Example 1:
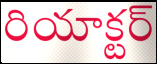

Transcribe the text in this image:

రియాక్టర్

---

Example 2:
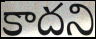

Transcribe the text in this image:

కాదని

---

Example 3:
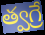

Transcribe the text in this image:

త్వగ్రే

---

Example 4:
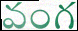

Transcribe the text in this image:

వంగ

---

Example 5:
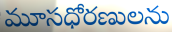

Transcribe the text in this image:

మూసధోరణులను